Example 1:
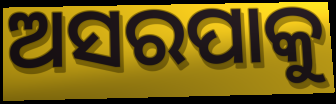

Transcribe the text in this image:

ଅସରପାକୁ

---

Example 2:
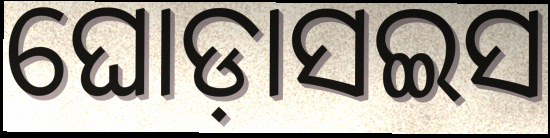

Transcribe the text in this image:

ଘୋଡ଼ାସଇସ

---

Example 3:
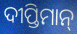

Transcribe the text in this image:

ଦୀପ୍ତିମାନ୍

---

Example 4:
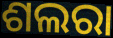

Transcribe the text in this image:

ଶଲରା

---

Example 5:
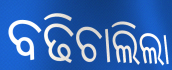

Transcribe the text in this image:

ବଢିଚାଲିଲା